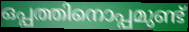
ഒപ്പത്തിനൊപ്പമുണ്ട്